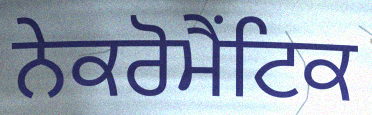
ਨੇਕਰੋਮੈਂਟਿਕ